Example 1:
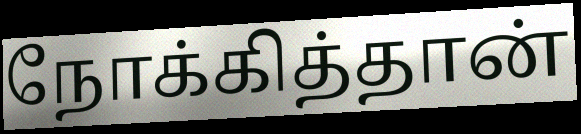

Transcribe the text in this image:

நோக்கித்தான்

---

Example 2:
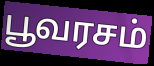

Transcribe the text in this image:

பூவரசம்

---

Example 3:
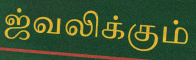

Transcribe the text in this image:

ஜ்வலிக்கும்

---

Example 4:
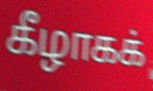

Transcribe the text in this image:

கீழாகக்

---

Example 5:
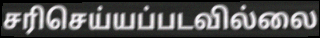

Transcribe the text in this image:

சரிசெய்யப்படவில்லை